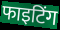
फाइटिंग